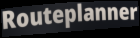
Routeplanner